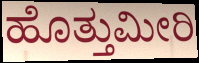
ಹೊತ್ತುಮೀರಿ